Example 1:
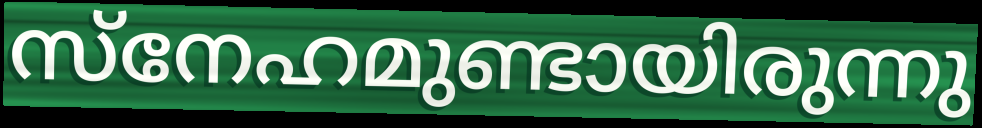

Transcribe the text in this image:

സ്നേഹമുണ്ടായിരുന്നു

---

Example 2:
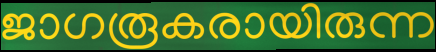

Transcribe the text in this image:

ജാഗരൂകരായിരുന്ന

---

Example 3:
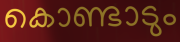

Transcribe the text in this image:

കൊണ്ടാടും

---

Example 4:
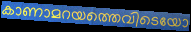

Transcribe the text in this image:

കാണാമറയത്തെവിടെയോ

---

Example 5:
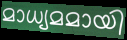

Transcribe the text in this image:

മാധ്യമമായി